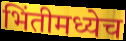
भिंतीमध्येच